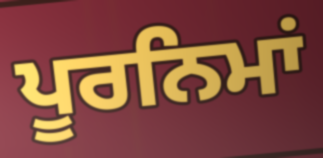
ਪੂਰਨਿਮਾਂ